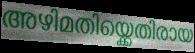
അഴിമതിയ്ക്കെതിരായ